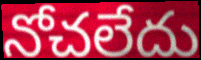
నోచలేదు